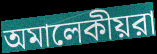
অমালেকীয়রা